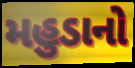
મહુડાનો